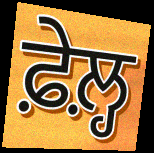
ਫ਼ੇਲ਼੍ਹ